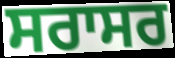
ਸਰਾਸਰ